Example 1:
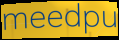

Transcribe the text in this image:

meedpu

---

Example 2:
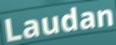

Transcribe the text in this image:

Laudan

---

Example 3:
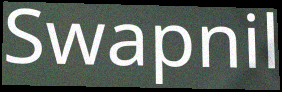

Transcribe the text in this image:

Swapnil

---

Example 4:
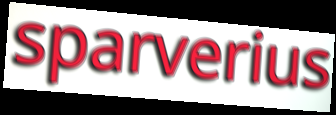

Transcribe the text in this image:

sparverius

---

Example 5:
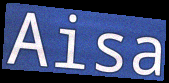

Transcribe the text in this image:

Aisa